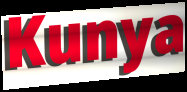
Kunya